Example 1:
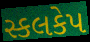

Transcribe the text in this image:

સ્કલકેપ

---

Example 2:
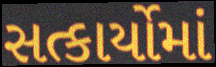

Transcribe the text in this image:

સત્કાર્યોમાં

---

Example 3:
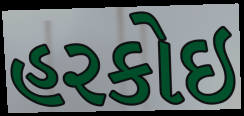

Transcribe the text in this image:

હરકોઇ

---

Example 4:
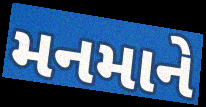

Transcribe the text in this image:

મનમાને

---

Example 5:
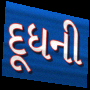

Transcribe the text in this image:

દૂધની